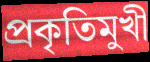
প্রকৃতিমুখী